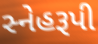
સ્નેહરૂપી